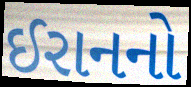
ઈરાનનો